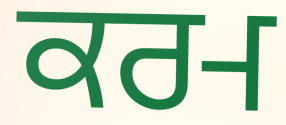
ਕਰ੍ਮ